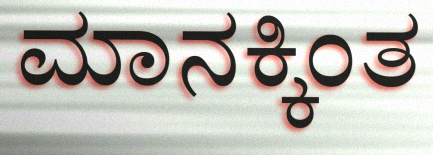
ಮಾನಕ್ಕಿಂತ